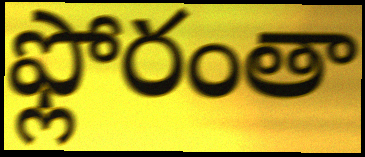
ఫ్లోరంతా